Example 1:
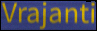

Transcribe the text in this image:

Vrajanti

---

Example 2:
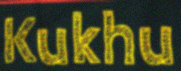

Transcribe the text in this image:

Kukhu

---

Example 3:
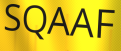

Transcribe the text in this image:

SQAAF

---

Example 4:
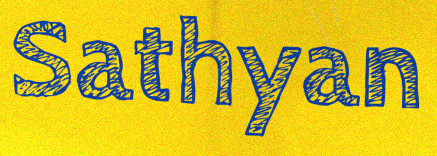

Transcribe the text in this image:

Sathyan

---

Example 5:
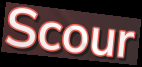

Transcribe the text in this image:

Scour